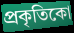
প্ৰকৃতিকো